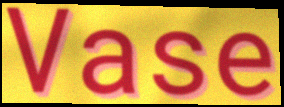
Vase